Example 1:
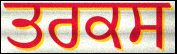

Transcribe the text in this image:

ਤਰਕਸ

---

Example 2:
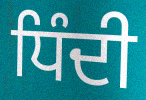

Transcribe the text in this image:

ਧਿੰਦੀ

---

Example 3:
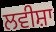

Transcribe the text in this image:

ਲਵੀਸ਼ਾ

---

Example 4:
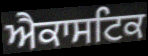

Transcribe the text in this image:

ਐਕਾਸਟਿਕ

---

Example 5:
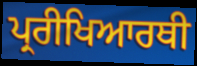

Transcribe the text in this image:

ਪ੍ਰਰੀਖਿਆਰਥੀ